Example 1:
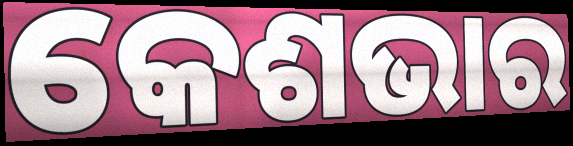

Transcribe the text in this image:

କେଶଭାର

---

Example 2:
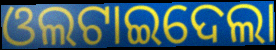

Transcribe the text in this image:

ଓଲଟାଇଦେଲା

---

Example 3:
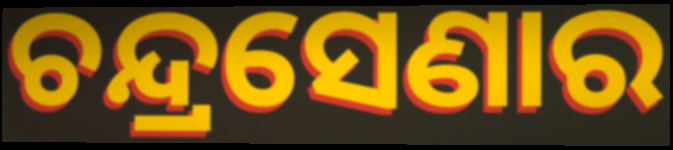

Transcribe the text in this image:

ଚନ୍ଦ୍ରସେଣାର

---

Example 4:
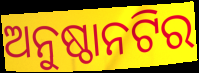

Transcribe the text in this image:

ଅନୁଷ୍ଠାନଟିର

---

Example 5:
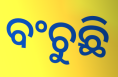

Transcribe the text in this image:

ବଂଚୁଛି